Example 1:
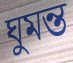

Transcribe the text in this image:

ঘুমন্ত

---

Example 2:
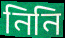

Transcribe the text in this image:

নিনি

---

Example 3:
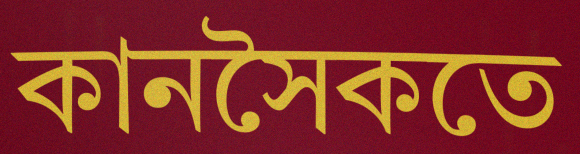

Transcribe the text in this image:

কানসৈকতে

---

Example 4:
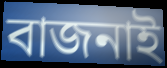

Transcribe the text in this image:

বাজনাই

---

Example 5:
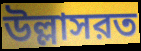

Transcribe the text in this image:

উল্লাসরত